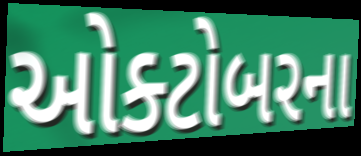
ઓક્ટોબરના